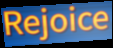
Rejoice